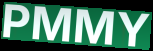
PMMY